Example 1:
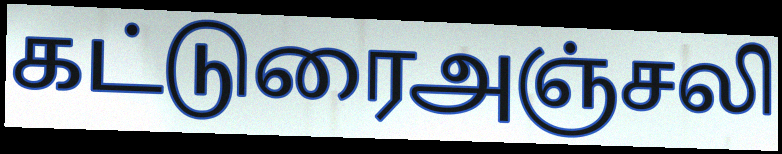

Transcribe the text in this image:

கட்டுரைஅஞ்சலி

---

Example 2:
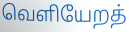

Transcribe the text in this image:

வெளியேறத்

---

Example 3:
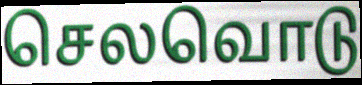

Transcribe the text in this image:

செலவொடு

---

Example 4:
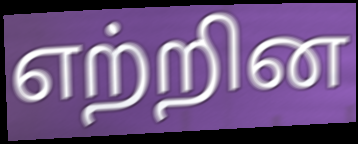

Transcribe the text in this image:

எற்றின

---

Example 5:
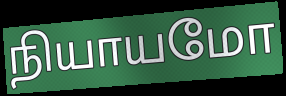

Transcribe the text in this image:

நியாயமோ